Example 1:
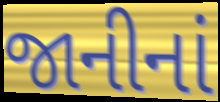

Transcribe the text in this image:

જાનીનાં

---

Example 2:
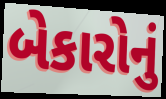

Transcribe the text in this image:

બેકારોનું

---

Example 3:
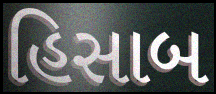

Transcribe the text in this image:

હિસાબ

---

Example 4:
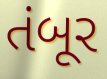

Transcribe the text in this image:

તંબૂર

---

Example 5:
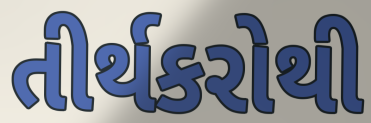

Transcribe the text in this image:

તીર્થકરોથી